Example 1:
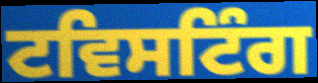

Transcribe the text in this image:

ਟਵਿਸਟਿੰਗ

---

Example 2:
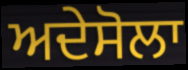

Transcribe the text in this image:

ਅਦੇਸੋਲਾ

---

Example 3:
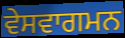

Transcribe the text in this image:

ਵੇਸਵਾਗਮਨ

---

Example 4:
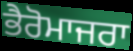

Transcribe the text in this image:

ਭੈਰੋਮਾਜਰਾ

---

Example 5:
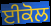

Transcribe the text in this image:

ਈਕੋਲ